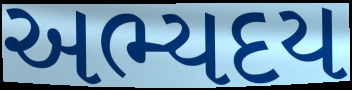
અભ્યદય